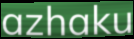
azhaku